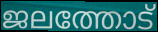
ജലത്തോട്